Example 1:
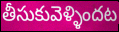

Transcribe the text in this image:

తీసుకువెళ్ళిందట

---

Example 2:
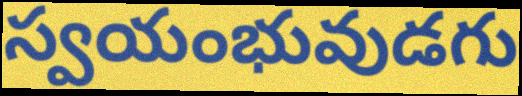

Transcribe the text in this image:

స్వయంభువుడగు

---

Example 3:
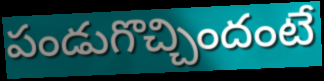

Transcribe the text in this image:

పండుగొచ్చిందంటే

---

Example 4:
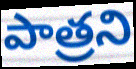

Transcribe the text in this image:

పాత్రని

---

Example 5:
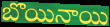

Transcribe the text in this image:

బొయినాయి